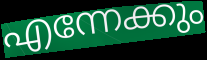
എന്നേക്കും